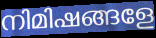
നിമിഷങ്ങളേ